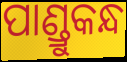
ପାଣ୍ଡ୍ରୁକନ୍ଧ